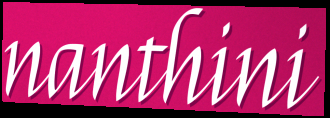
nanthini